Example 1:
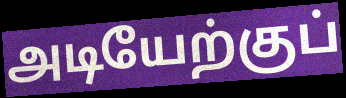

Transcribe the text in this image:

அடியேற்குப்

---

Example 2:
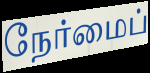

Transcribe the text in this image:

நேர்மைப்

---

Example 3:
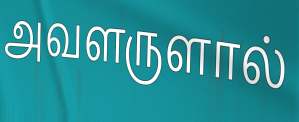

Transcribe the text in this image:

அவளருளால்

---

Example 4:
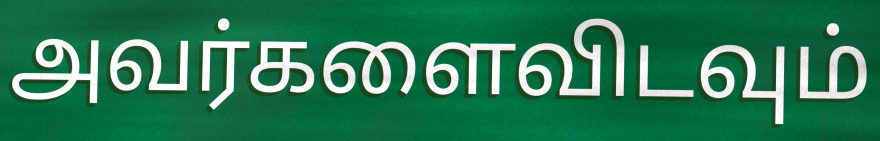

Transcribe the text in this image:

அவர்களைவிடவும்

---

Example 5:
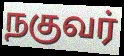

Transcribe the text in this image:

நகுவர்